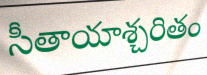
సీతాయాశ్చరితం